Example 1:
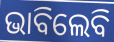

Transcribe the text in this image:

ଭାବିଲେବି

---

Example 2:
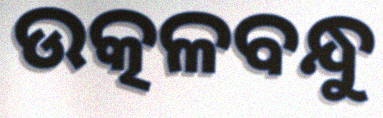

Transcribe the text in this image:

ଉତ୍କଳବନ୍ଧୁ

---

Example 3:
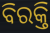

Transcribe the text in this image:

ବିରକ୍ତି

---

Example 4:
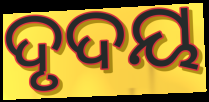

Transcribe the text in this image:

ଦୃଦୟ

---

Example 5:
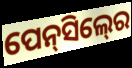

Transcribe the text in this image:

ପେନ୍‍ସିଲ୍‍ରେ